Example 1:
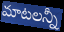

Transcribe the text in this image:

మాటలన్నీ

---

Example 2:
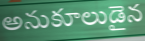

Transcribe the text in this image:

అనుకూలుడైన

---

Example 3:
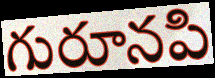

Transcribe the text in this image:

గురూనపి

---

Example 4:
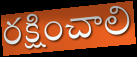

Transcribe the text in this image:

రక్షించాలి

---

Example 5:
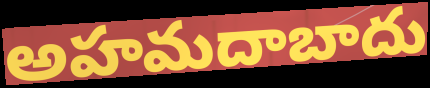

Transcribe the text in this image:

అహమదాబాదు